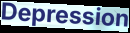
Depression